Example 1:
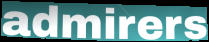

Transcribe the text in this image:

admirers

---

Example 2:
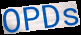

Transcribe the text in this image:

OPDs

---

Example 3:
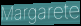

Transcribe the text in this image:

Margarete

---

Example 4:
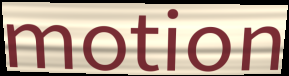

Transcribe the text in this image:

motion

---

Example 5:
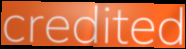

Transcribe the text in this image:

credited